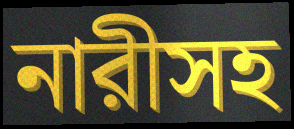
নারীসহ